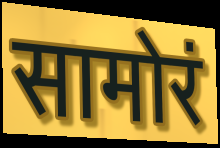
सामोरं